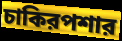
চাকিরপশার